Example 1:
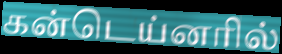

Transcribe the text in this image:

கன்டெய்னரில்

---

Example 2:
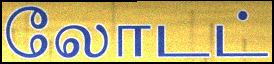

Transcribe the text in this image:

லோடட்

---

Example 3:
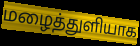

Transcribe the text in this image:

மழைத்துளியாக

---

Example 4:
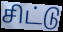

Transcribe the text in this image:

சிட்டு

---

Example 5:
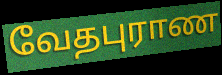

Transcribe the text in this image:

வேதபுராண